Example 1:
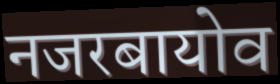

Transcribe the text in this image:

नजरबायोव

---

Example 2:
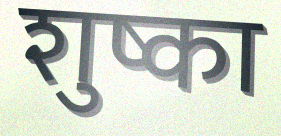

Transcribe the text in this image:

शुष्का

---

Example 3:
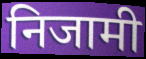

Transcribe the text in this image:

निजामी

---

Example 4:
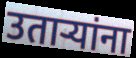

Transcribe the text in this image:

उताऱ्यांना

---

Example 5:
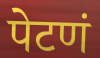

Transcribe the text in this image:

पेटणं